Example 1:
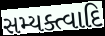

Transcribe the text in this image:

સમ્યક્ત્વાદિ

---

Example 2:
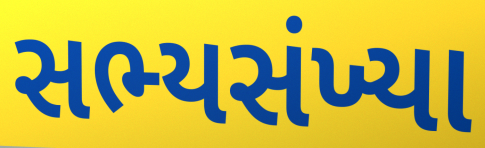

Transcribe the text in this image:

સભ્યસંખ્યા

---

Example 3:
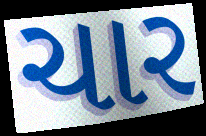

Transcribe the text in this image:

ચાર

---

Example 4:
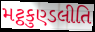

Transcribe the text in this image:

મટ્ઠકુણ્ડલીતિ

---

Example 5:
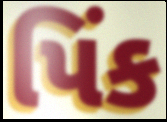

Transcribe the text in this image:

પિંક